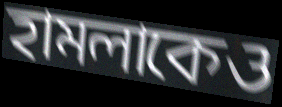
হামলাকেও